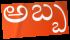
అబ్బ